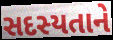
સદસ્યતાને